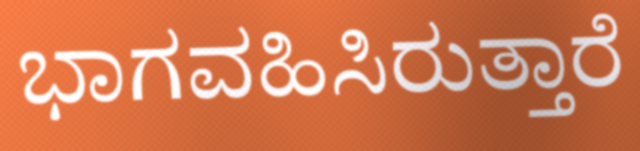
ಭಾಗವಹಿಸಿರುತ್ತಾರೆ